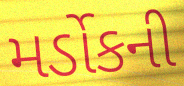
મર્ડોકની